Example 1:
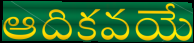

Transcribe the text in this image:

ఆదికవయే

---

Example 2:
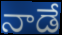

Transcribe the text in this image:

నాడే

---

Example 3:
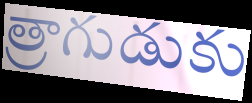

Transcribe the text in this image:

త్రాగుడుకు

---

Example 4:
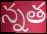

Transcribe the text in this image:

న్నత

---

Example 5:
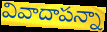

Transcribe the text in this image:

వివాదాపన్నా